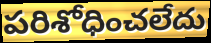
పరిశోధించలేదు